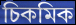
চিকমিক